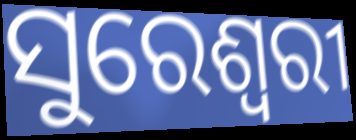
ସୁରେଶ୍ଵରୀ